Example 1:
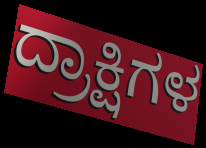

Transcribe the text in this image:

ದ್ರಾಕ್ಷಿಗಳ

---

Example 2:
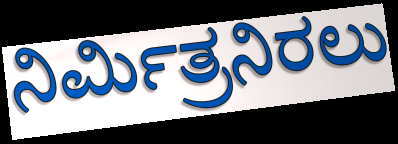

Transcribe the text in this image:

ನಿರ್ಮಿತ್ರನಿರಲು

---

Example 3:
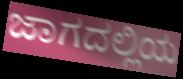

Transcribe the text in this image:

ಜಾಗದಲ್ಲಿಯ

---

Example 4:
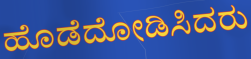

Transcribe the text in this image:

ಹೊಡೆದೋಡಿಸಿದರು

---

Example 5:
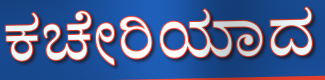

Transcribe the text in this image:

ಕಚೇರಿಯಾದ